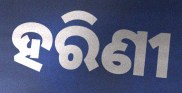
ହରିଣୀ